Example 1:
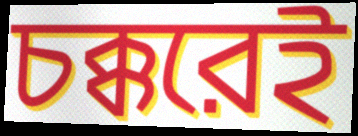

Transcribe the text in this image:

চক্করেই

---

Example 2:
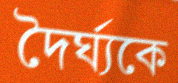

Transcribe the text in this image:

দৈর্ঘ্যকে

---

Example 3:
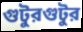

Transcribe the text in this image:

গুটুরগুটুর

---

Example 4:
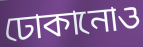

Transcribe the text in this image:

ঢোকানোও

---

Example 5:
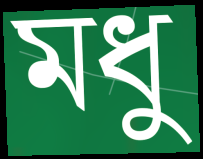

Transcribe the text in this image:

মধু